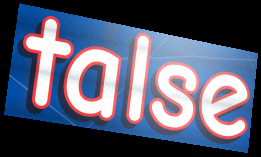
talse